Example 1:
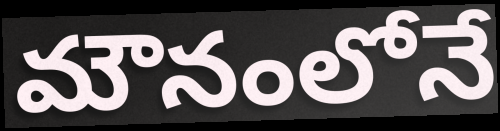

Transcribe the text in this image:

మౌనంలోనే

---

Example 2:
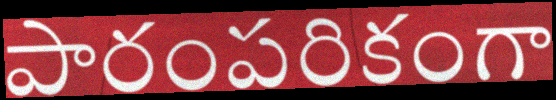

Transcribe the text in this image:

పారంపరికంగా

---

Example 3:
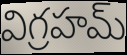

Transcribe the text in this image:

విగ్రహమ్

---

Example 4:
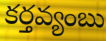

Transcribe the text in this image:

కర్తవ్యంబు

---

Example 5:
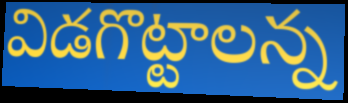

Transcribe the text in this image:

విడగొట్టాలన్న